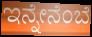
ಇನ್ನೇನೆಂಬೆ